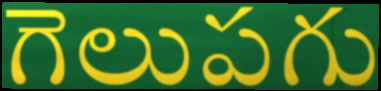
గెలుపగు